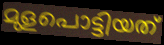
മുളപൊട്ടിയത്